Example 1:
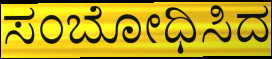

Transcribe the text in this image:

ಸಂಬೋಧಿಸಿದ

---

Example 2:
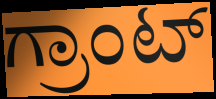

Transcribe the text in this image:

ಗ್ರಾಂಟ್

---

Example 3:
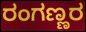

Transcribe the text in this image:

ರಂಗಣ್ಣರ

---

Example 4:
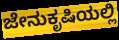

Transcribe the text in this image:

ಜೇನುಕೃಷಿಯಲ್ಲಿ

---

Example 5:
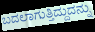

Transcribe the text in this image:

ಬದಲಾಗುತ್ತಿದ್ದುದನ್ನು